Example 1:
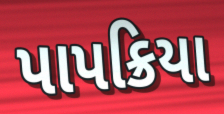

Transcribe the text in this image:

પાપક્રિયા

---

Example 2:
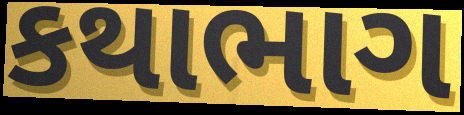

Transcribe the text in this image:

કથાભાગ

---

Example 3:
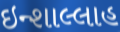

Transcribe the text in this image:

ઇન્શાલ્લાહ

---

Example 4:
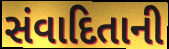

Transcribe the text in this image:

સંવાદિતાની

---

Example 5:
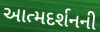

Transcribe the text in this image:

આત્મદર્શનની